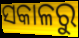
ସକାଳରୁ